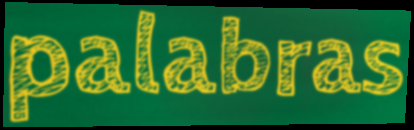
palabras